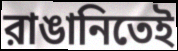
রাঙানিতেই